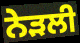
ਨੇੜਲੀ